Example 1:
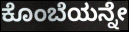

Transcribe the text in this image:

ಕೊಂಬೆಯನ್ನೇ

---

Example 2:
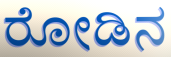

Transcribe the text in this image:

ರೋಡಿನ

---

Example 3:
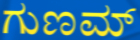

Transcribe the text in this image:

ಗುಣಮ್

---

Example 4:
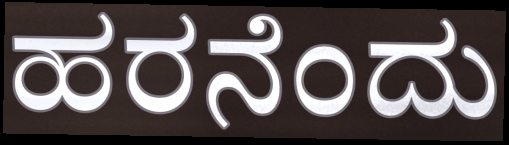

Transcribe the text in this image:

ಹರನೆಂದು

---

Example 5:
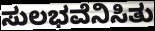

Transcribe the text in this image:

ಸುಲಭವೆನಿಸಿತು